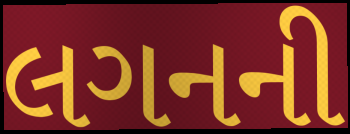
લગનની